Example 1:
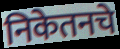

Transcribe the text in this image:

निकेतनचे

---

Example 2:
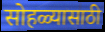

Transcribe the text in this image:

सोहळ्यासाठी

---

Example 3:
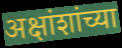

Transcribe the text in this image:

अक्षांशांच्या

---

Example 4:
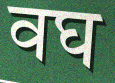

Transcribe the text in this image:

वघ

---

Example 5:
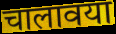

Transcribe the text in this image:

चालावया